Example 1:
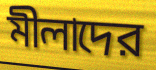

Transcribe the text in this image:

মীলাদের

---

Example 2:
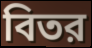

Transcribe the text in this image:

বিতর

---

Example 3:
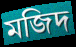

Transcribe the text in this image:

মজিদ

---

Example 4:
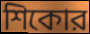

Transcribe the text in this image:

শিকোর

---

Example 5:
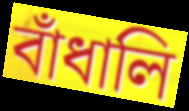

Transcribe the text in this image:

বাঁধালি